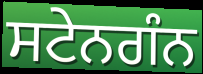
ਸਟੇਨਗੰਨ